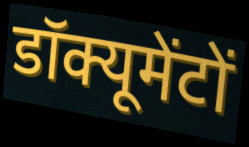
डॉक्यूमेंटों